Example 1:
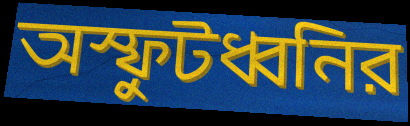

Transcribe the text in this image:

অস্ফুটধ্বনির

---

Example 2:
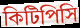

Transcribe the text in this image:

কিটিপিসি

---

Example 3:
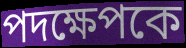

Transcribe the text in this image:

পদক্ষেপকে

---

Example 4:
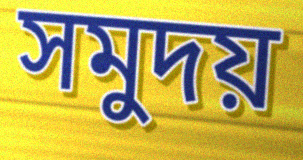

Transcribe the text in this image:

সমুদয়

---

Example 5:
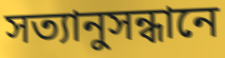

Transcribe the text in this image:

সত্যানুসন্ধানে